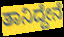
ತಾನಿದ್ದೇನೆ